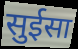
सुईसा